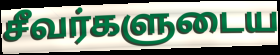
சீவர்களுடைய